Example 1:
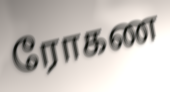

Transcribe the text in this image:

ரோகண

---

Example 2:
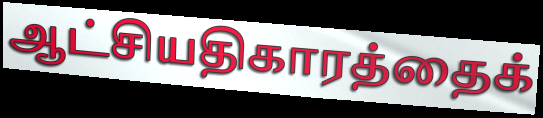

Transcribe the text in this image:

ஆட்சியதிகாரத்தைக்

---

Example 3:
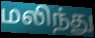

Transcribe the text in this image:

மலிந்து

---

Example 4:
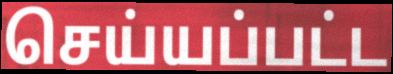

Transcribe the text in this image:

செய்யப்பட்ட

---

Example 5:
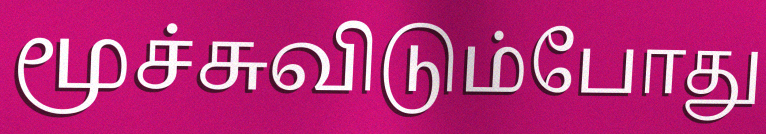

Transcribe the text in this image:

மூச்சுவிடும்போது